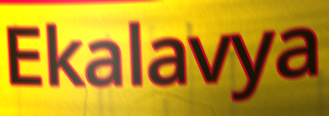
Ekalavya